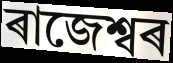
ৰাজেশ্বৰ